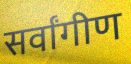
सर्वांगीण